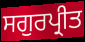
ਸਗੁਰਪ੍ਰੀਤ